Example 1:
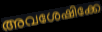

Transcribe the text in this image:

അവശേഷിക്കേ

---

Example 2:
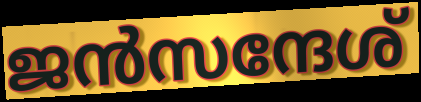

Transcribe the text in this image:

ജൻസന്ദേശ്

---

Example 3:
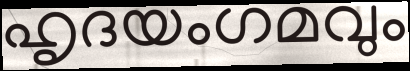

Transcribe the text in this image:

ഹൃദയംഗമവും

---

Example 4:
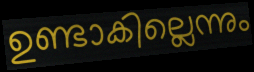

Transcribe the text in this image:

ഉണ്ടാകില്ലെന്നും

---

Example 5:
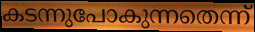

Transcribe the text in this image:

കടന്നുപോകുന്നതെന്ന്